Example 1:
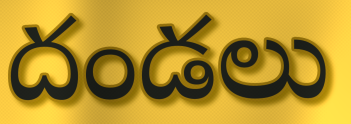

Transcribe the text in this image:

దండలు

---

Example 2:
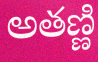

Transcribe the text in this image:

అతణ్ణి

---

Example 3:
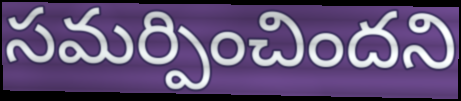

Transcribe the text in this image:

సమర్పించిందని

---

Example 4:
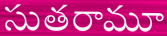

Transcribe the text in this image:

సుతరామూ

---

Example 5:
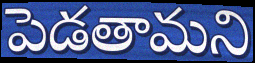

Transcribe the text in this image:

పెడతామని